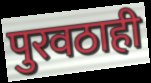
पुरवठाही